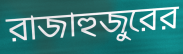
রাজাহুজুরের